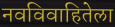
नवविवाहितेला